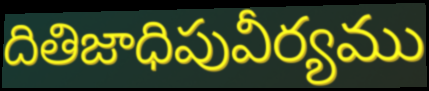
దితిజాధిపువీర్యము